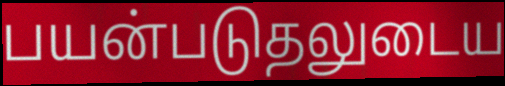
பயன்படுதலுடைய